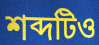
শব্দটিও